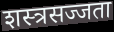
शस्त्रसज्जता